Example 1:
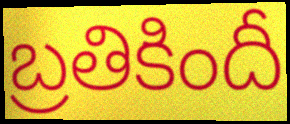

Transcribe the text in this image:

బ్రతికిందీ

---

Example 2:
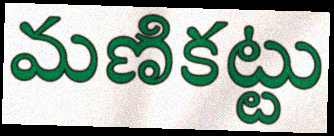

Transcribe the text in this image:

మణికట్టు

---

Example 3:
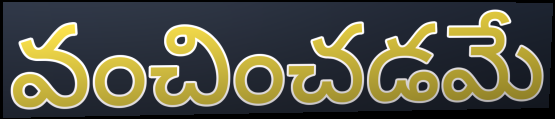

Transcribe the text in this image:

వంచించడమే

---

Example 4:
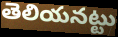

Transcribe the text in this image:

తెలియనట్టు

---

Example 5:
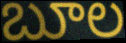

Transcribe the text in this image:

బూల